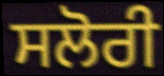
ਸਲੋਰੀ